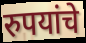
रुपयांचे